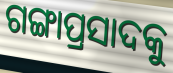
ଗଙ୍ଗାପ୍ରସାଦକୁ